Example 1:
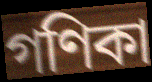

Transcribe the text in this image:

গণিকা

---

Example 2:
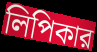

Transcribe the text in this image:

লিপিকার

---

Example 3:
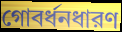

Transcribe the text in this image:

গোবর্ধনধারণ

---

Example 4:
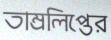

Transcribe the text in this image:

তাম্রলিপ্তের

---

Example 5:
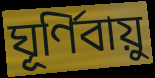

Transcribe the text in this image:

ঘূর্ণিবায়ু